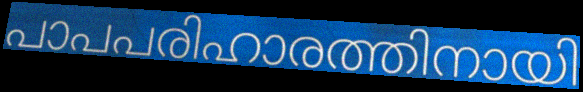
പാപപരിഹാരത്തിനായി